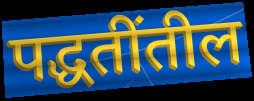
पद्धतींतील